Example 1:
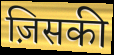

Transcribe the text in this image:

ज़िसकी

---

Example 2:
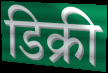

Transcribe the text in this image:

डिक्री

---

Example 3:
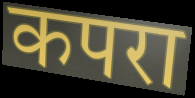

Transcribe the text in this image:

कपरा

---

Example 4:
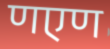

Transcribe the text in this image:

णएण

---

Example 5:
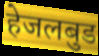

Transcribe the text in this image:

हेजलबुड